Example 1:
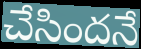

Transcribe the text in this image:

చేసిందనే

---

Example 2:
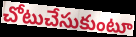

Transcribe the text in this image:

చోటుచేసుకుంటూ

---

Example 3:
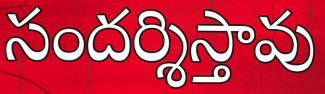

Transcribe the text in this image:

సందర్శిస్తావు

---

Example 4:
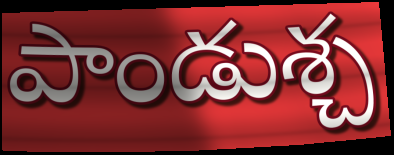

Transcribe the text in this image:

పాండుశ్చ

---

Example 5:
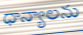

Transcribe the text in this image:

ధాన్యాలను